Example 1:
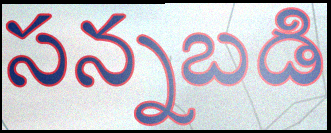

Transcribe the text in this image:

సన్నబడి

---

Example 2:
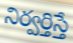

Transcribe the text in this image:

నిర్వర్తిస్తే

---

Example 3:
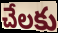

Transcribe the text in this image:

చేలకు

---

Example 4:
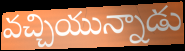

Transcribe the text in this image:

వచ్చియున్నాడు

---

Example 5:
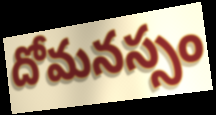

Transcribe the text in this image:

దోమనస్సం